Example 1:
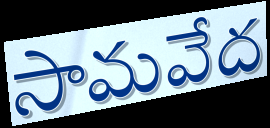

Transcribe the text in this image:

సామవేద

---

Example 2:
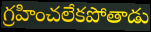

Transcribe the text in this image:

గ్రహించలేకపోతాడు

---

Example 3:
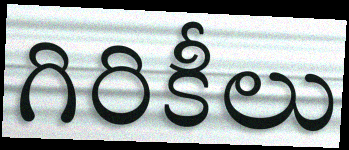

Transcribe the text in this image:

గిరికీలు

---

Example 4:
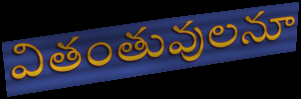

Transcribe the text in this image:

వితంతువులనూ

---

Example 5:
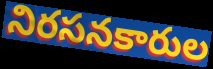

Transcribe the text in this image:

నిరసనకారుల